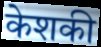
केशकी